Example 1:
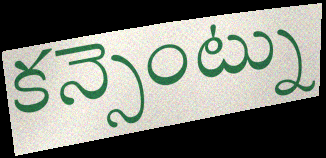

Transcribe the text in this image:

కన్సెంట్ను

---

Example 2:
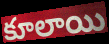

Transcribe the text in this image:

కూలాయి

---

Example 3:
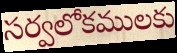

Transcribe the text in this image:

సర్వలోకములకు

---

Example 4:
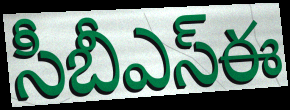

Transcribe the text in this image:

సీబీఎస్ఈ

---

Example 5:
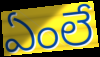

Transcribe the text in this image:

ఏంలే